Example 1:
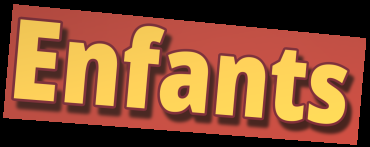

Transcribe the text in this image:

Enfants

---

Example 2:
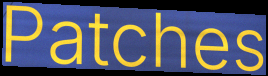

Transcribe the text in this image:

Patches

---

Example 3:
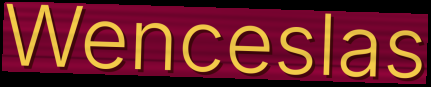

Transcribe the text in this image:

Wenceslas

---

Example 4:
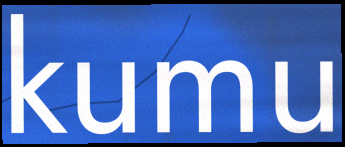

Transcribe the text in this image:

kumu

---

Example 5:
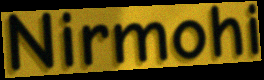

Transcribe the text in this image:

Nirmohi